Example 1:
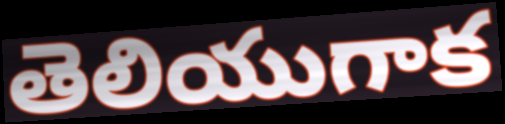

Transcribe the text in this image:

తెలియుగాక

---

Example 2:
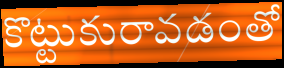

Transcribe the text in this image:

కొట్టుకురావడంతో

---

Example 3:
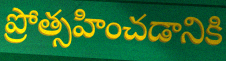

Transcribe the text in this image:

ప్రోత్సహించడానికి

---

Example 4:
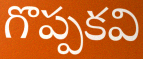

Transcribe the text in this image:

గొప్పకవి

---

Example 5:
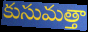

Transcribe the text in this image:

కుసుమత్తా